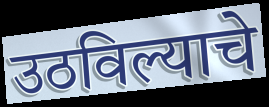
उठविल्याचे